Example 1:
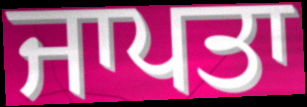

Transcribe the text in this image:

ਜਾਪਤਾ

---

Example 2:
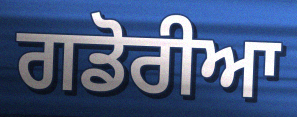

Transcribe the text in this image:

ਗਡੋਰੀਆ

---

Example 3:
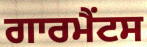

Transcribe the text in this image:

ਗਾਰਮੈਂਟਸ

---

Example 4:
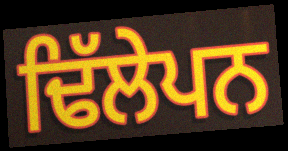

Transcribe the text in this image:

ਢਿੱਲੇਪਨ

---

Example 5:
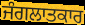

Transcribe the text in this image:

ਜੰਗਲਾਤਕਾਰ